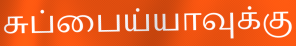
சுப்பைய்யாவுக்கு